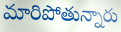
మారిపోతున్నారు